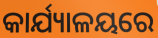
କାର୍ଯ୍ୟାଳୟରେ